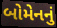
બોમેનનું